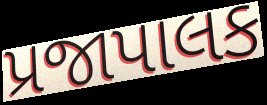
પ્રજાપાલક